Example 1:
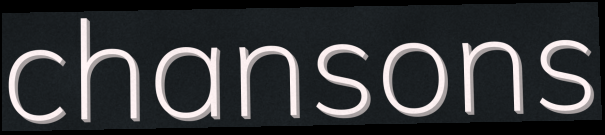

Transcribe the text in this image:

chansons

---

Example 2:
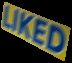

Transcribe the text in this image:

LIKED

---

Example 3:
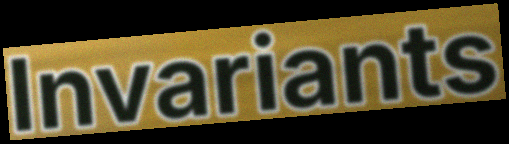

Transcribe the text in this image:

Invariants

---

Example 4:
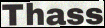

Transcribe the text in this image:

Thass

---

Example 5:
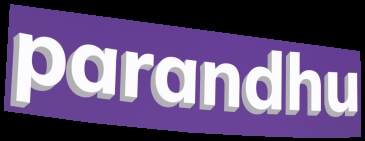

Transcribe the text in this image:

parandhu